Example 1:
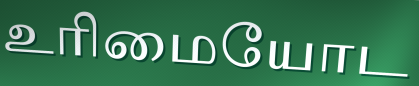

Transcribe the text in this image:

உரிமையோட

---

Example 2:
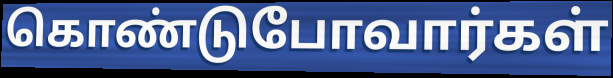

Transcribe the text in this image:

கொண்டுபோவார்கள்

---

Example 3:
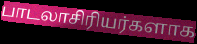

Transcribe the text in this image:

பாடலாசிரியர்களாக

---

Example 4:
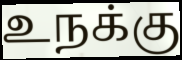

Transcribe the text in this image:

உநக்கு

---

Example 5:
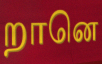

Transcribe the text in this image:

றானெ